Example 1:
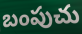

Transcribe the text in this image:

బంపుచు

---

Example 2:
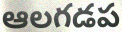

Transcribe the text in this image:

ఆలగడప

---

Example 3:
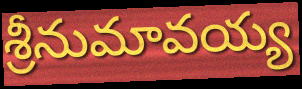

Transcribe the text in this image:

శ్రీనుమావయ్య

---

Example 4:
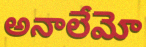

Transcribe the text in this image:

అనాలేమో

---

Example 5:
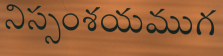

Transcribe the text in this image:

నిస్సంశయముగ